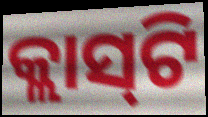
କ୍ଲାସ୍‍ଟି